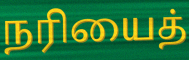
நரியைத்